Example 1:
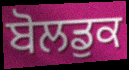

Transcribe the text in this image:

ਬੋਲਡੁਕ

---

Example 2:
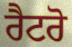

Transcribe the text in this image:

ਰੈਟਰੋ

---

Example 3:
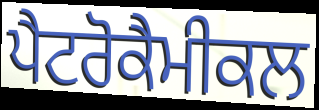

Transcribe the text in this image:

ਪੈਟਰੋਕੈਮੀਕਲ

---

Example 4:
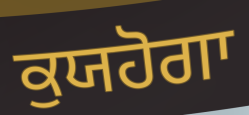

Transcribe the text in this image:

ਕੁਯਹੋਗਾ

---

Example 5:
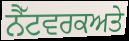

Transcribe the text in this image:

ਨੈੱਟਵਰਕਅਤੇ